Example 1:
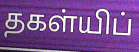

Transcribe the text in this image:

தகள்யிப்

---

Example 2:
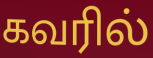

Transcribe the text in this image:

கவரில்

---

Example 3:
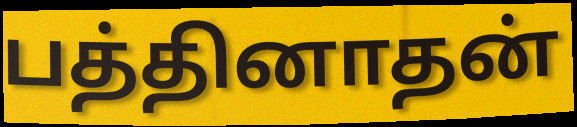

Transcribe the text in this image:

பத்தினாதன்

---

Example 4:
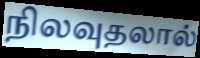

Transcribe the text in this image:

நிலவுதலால்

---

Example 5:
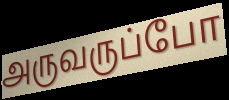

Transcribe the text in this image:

அருவருப்போ